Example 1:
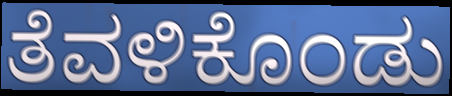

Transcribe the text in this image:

ತೆವಳಿಕೊಂಡು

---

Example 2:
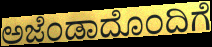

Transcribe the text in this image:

ಅಜೆಂಡಾದೊಂದಿಗೆ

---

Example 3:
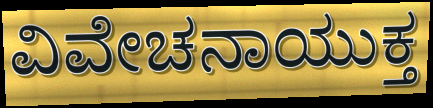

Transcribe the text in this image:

ವಿವೇಚನಾಯುಕ್ತ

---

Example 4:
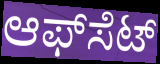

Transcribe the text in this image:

ಆಫ್‍ಸೆಟ್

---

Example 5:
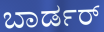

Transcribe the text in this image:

ಬಾರ್ಡರ್